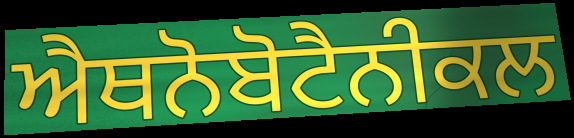
ਐਥਨੋਬੋਟੈਨੀਕਲ